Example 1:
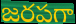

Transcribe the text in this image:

జరపగా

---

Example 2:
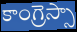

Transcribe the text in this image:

కాంగ్రెస్సా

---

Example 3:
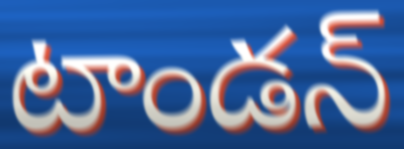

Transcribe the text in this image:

టాండన్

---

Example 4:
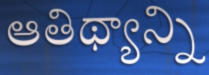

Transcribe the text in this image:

ఆతిథ్యాన్ని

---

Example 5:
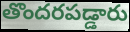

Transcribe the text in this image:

తొందరపడ్డారు